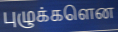
புழுக்களென